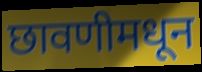
छावणीमधून